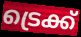
ട്രെക്ക്